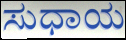
ಸುಧಾಯ